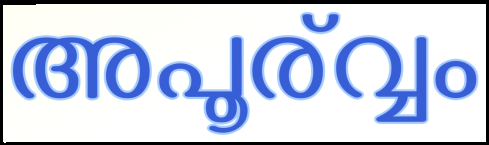
അപൂര്വ്വം